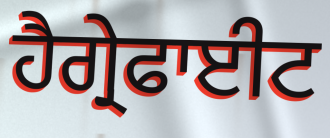
ਹੈਗ੍ਰੇਫਾਈਟ